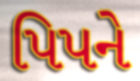
પિપને